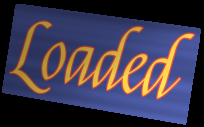
Loaded